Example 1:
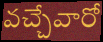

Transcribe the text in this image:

వచ్చేవారో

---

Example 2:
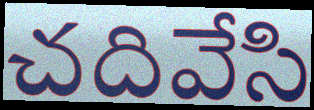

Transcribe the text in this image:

చదివేసి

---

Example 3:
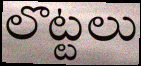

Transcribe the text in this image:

లొట్టలు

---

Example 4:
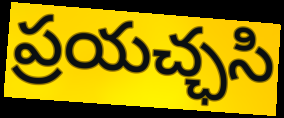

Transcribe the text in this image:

ప్రయచ్ఛసి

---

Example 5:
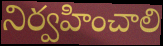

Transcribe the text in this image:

నిర్వహించాలి